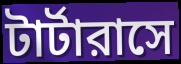
টার্টারাসে